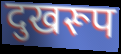
दुखरूप